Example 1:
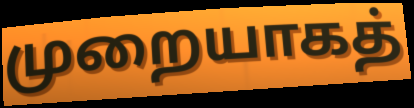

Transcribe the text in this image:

முறையாகத்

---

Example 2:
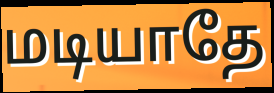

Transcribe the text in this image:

மடியாதே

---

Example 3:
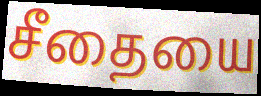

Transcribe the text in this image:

சீதையை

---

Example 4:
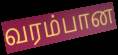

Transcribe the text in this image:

வரம்பான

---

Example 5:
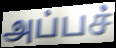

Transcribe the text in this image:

அப்பச்